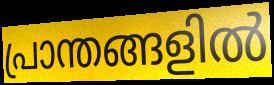
പ്രാന്തങ്ങളിൽ